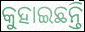
କୁହାଇଛନ୍ତି